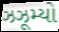
ઝઝૂમ્યો